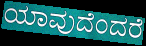
ಯಾವುದೆಂದರೆ